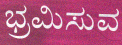
ಭ್ರಮಿಸುವ